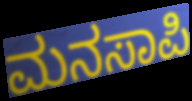
ಮನಸಾಪಿ